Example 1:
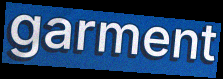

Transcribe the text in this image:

garment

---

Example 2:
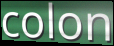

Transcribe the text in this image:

colon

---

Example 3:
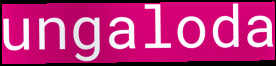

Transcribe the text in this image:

ungaloda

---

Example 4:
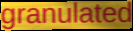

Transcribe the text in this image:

granulated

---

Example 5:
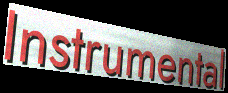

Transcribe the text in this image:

Instrumental